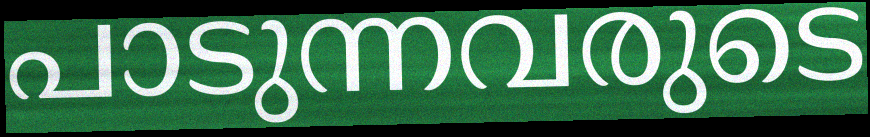
പാടുന്നവരുടെ